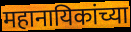
महानायिकांच्या